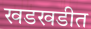
खडखडीत